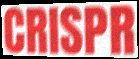
CRISPR